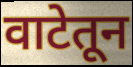
वाटेतून